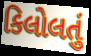
કિલોલતું